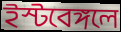
ইস্টবেঙ্গলে